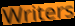
Writers